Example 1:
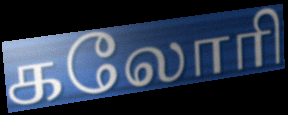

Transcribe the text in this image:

கலோரி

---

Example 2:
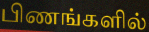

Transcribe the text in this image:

பிணங்களில்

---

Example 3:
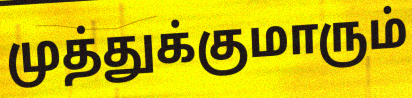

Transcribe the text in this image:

முத்துக்குமாரும்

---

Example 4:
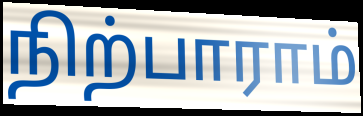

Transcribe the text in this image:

நிற்பாராம்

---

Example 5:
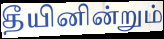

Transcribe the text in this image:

தீயினின்றும்